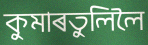
কুমাৰতুলিলৈ